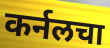
कर्नलचा